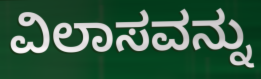
ವಿಲಾಸವನ್ನು